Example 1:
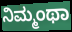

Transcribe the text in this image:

ನಿಮ್ಮಂಥಾ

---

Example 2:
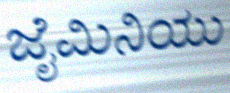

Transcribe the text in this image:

ಜೈಮಿನಿಯು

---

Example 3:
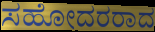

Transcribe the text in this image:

ಸಹೋದರರಾದ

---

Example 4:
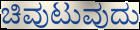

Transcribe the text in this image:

ಚಿವುಟುವುದು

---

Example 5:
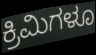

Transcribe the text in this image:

ಕ್ರಿಮಿಗಳೂ